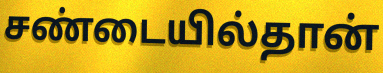
சண்டையில்தான்